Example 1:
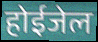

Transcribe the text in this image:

होईजेल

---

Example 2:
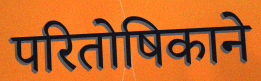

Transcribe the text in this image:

परितोषिकाने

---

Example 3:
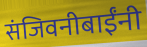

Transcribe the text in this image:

संजिवनीबाईंनी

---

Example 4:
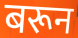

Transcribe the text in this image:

बरून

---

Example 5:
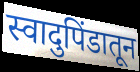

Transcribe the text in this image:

स्वादुपिंडातून